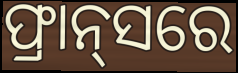
ଫ୍ରାନ୍‌ସରେ